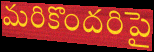
మరికొందరిపై